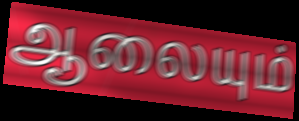
ஆலையும்